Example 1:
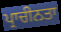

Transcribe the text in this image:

ਪ੍ਰਾਚੀਨਤਾ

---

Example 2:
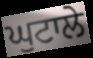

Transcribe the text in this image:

ਘੁਟਾਲੇ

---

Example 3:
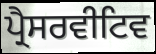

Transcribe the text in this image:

ਪ੍ਰੈਸਰਵੀਟਿਵ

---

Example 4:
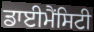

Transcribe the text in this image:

ਡਾਈਮੈਂਸਿਟੀ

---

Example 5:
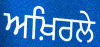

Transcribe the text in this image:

ਅਖ਼ਿਰਲੇ